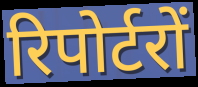
रिपोर्टरों